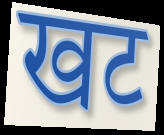
खट